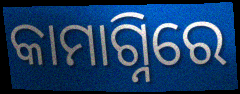
କାମାଗ୍ନିରେ